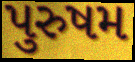
પુરુષમ